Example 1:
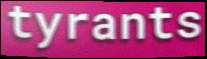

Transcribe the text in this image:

tyrants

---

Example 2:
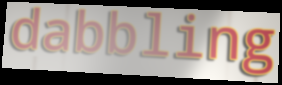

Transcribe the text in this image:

dabbling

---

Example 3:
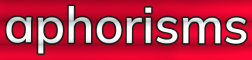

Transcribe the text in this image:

aphorisms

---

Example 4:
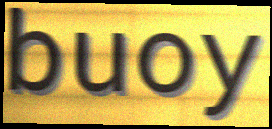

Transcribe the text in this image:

buoy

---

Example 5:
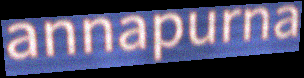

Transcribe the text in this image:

annapurna